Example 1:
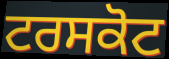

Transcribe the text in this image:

ਟਰਸਕੋਟ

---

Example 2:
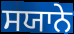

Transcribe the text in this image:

ਸਯਾਨੇ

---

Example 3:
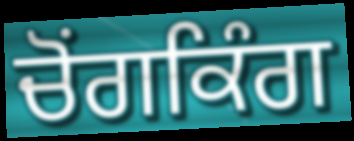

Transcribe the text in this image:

ਚੋਂਗਕਿੰਗ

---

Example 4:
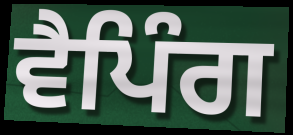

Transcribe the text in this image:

ਵੈਪਿੰਗ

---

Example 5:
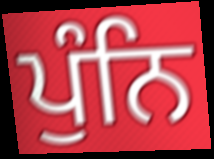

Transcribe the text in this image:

ਪੁੰਨਿ